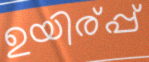
ഉയിര്പ്പ്